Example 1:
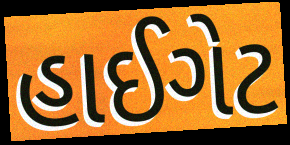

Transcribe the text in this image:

હાઈગેટ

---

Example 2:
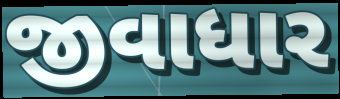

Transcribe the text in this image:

જીવાધાર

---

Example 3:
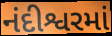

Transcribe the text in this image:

નંદીશ્વરમાં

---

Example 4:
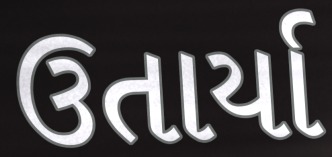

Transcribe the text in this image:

ઉતાર્યા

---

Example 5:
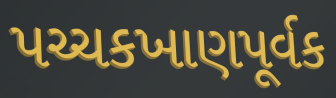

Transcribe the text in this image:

પચ્ચકખાણપૂર્વક